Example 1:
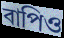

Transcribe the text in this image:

বাপিও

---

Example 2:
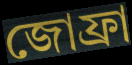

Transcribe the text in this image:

জোফ্রা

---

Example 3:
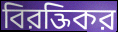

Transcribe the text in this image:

বিরক্তিকর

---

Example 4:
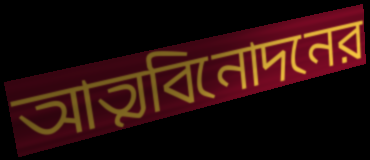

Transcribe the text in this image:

আত্মবিনোদনের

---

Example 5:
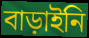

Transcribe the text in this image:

বাড়াইনি